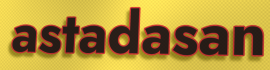
astadasan